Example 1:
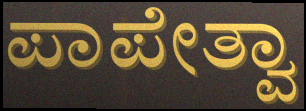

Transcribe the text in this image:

ಪಾಪೇತ್ವಾ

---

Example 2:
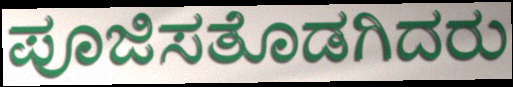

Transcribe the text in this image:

ಪೂಜಿಸತೊಡಗಿದರು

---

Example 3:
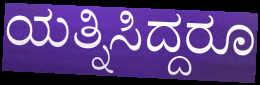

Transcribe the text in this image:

ಯತ್ನಿಸಿದ್ದರೂ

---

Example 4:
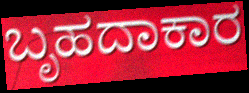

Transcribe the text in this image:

ಬೃಹದಾಕಾರ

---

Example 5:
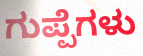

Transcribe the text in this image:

ಗುಪ್ಪೆಗಳು